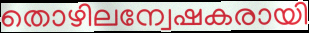
തൊഴിലന്വേഷകരായി